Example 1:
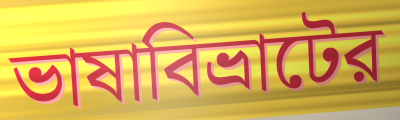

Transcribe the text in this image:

ভাষাবিভ্রাটের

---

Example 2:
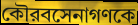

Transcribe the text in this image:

কৌরবসেনাগণকে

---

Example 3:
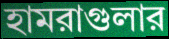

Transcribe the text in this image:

হামরাগুলার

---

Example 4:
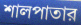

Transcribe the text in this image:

শালপাতার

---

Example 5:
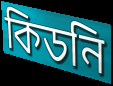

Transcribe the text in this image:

কিডনি